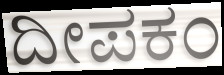
ದೀಪಕಂ